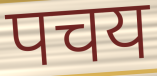
पचय